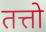
तत्तो